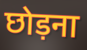
छोड़ना